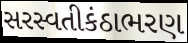
સરસ્વતીકંઠાભરણ